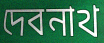
দেবনাথ